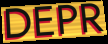
DEPR